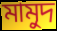
মামুদ